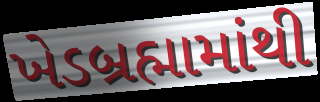
ખેડબ્રહ્મામાંથી